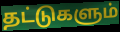
தட்டுகளும்